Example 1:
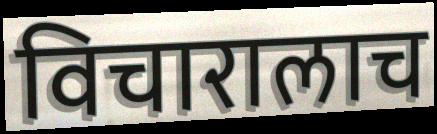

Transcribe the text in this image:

विचारालाच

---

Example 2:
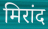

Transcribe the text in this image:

मिरांद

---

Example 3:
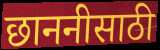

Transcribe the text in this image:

छाननीसाठी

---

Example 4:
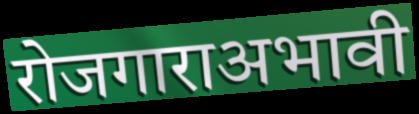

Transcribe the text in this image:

रोजगाराअभावी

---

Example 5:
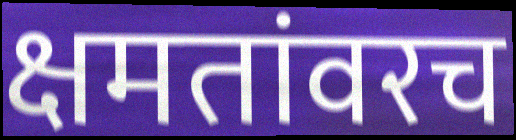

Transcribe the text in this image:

क्षमतांवरच